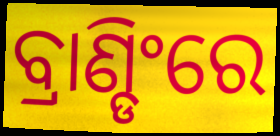
ବ୍ରାଣ୍ଡିଂରେ